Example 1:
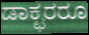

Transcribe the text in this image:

ಡಾಕ್ಟರರೂ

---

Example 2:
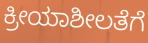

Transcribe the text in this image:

ಕ್ರೀಯಾಶೀಲತೆಗೆ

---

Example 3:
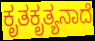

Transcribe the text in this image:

ಕೃತಕೃತ್ಯನಾದೆ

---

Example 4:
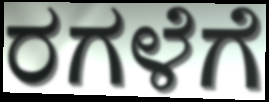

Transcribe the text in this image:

ರಗಳೆಗೆ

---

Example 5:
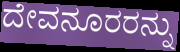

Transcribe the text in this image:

ದೇವನೂರರನ್ನು